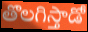
తొలగిస్తాడో